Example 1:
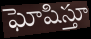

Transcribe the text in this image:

ఘోషిస్తూ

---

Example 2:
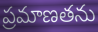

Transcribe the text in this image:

ప్రమాణతను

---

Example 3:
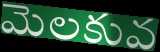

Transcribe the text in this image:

మెలకువ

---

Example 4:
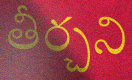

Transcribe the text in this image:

తీర్చని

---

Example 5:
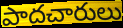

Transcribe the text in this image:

పాదచారులు